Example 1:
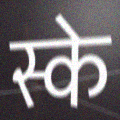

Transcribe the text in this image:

स्के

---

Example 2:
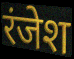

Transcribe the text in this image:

रंजेश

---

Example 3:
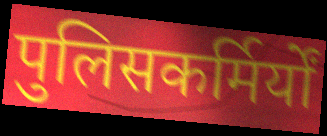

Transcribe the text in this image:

पुलिसकर्मिर्यों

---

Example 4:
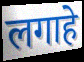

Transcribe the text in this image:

लगाहे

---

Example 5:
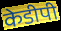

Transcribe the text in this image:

केडीपी